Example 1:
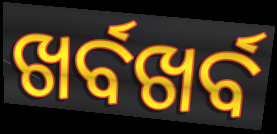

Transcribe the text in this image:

ଖର୍ବଖର୍ବ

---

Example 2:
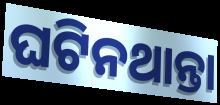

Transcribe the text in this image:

ଘଟିନଥାନ୍ତା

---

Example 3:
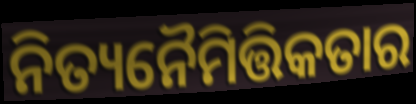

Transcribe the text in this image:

ନିତ୍ୟନୈମିତ୍ତିକତାର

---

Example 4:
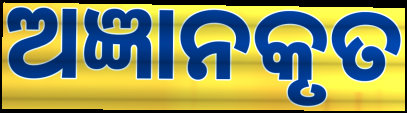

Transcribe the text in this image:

ଅଜ୍ଞାନକୃତ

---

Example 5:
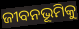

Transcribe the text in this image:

ଜୀବନଭୂମିକୁ